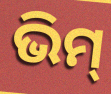
ଭିମ୍